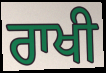
ਰਾਖੀ